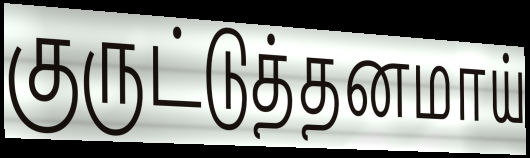
குருட்டுத்தனமாய்